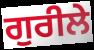
ਗੁਰੀਲੇ